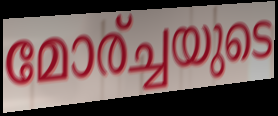
മോര്ച്ചയുടെ